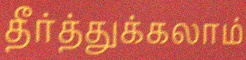
தீர்த்துக்கலாம்